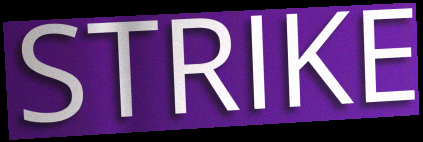
STRIKE